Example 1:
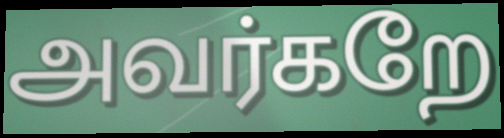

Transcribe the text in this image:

அவர்கறே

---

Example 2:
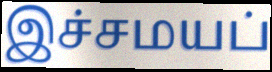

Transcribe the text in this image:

இச்சமயப்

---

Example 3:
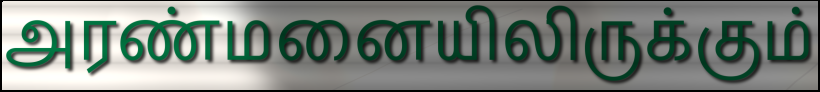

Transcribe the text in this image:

அரண்மனையிலிருக்கும்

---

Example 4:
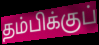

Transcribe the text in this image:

தம்பிக்குப்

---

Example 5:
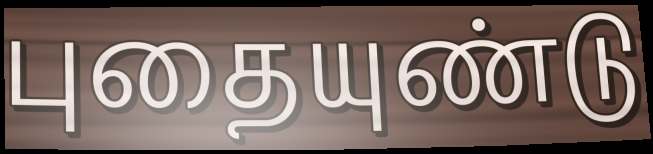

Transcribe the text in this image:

புதையுண்டு